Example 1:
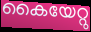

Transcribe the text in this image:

കൈയേറ്റു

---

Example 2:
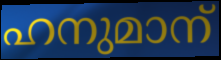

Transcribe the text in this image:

ഹനുമാന്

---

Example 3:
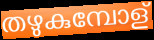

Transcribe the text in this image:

തഴുകുമ്പോള്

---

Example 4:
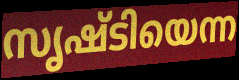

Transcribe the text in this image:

സൃഷ്ടിയെന്ന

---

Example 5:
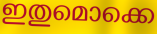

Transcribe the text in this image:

ഇതുമൊക്കെ